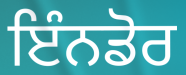
ਇੰਨਡੋਰ